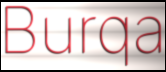
Burqa